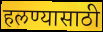
हलण्यासाठी